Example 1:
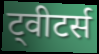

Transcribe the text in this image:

ट्वीटर्स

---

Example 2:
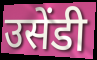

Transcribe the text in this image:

उसेंडी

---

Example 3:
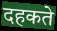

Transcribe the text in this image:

दहकते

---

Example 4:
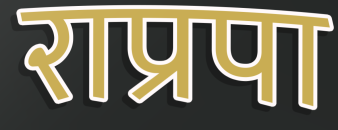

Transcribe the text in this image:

राप्रपा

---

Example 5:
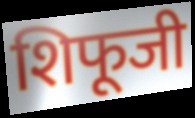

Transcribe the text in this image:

शिफूजी